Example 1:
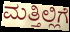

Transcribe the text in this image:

ಮತ್ತಿಲ್ಲಿಗೆ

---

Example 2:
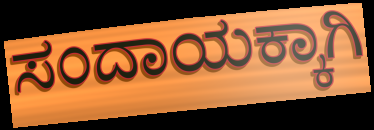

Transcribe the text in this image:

ಸಂದಾಯಕ್ಕಾಗಿ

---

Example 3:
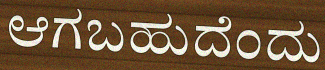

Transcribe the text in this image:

ಆಗಬಹುದೆಂದು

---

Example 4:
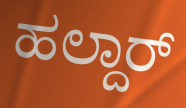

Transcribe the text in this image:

ಹಲ್ದಾರ್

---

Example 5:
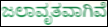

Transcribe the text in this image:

ಜಲಾವೃತವಾಗಿವೆ